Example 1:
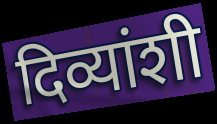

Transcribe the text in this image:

दिव्यांशी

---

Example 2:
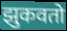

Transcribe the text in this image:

झुकवतो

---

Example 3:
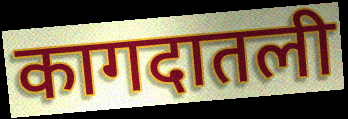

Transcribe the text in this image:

कागदातली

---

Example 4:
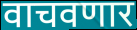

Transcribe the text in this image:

वाचवणार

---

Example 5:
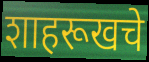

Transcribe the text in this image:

शाहरूखचे